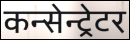
कन्सेन्ट्रेटर